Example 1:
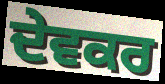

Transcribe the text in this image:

ਦੇਵਕਰ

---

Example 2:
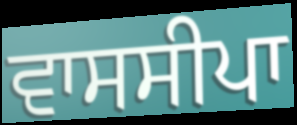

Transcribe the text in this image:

ਵਾਸਸੀਪਾ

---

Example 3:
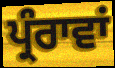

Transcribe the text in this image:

ਪ੍ਰੰਰਾਵਾਂ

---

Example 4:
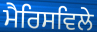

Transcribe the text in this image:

ਮੈਰਿਸਵਿਲੇ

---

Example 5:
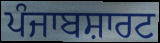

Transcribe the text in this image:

ਪੰਜਾਬਸ਼ਾਰਟ